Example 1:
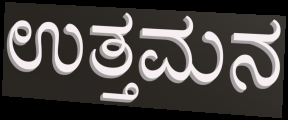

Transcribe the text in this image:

ಉತ್ತಮನ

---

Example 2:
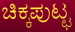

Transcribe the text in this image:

ಚಿಕ್ಕಪುಟ್ಟ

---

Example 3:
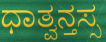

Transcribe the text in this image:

ಧಾತ್ವನ್ತಸ್ಸ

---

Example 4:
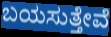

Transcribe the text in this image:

ಬಯಸುತ್ತೇವೆ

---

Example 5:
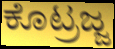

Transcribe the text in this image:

ಕೊಟ್ರಜ್ಜ